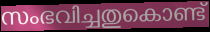
സംഭവിച്ചതുകൊണ്ട്